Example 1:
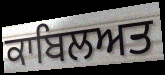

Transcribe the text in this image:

ਕਾਬਿਲਅਤ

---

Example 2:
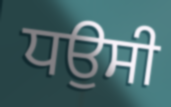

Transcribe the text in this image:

ਧਉਸੀ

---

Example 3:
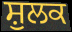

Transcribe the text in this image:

ਸ਼ੁਲਕ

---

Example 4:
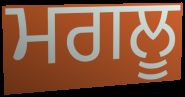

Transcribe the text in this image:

ਮਗਲੂ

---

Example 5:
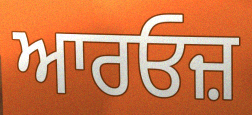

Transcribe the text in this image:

ਆਰਓਜ਼